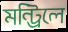
মন্ট্রিলে